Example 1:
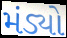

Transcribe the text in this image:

મંડ્યો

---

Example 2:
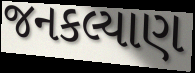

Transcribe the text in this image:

જનકલ્યાણ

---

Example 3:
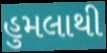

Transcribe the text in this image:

હુમલાથી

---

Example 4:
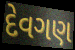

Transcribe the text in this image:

દેવગણ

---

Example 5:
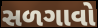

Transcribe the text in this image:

સળગાવો